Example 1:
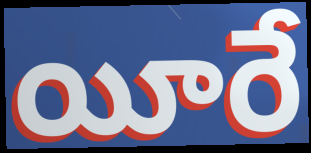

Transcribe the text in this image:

యీరే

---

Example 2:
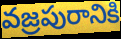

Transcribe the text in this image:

వజ్రపురానికి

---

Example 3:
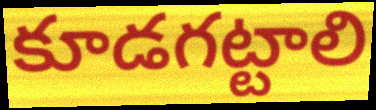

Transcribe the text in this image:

కూడగట్టాలి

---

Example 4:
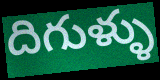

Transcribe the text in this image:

దిగుళ్ళు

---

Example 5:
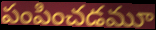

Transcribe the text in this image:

పంపించడమూ